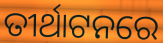
ତୀର୍ଥାଟନରେ